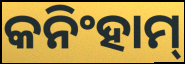
କନିଂହାମ୍